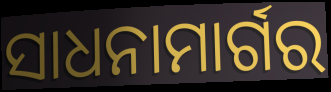
ସାଧନାମାର୍ଗର